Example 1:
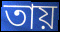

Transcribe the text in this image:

তায়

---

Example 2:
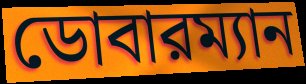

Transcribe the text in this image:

ডোবারম্যান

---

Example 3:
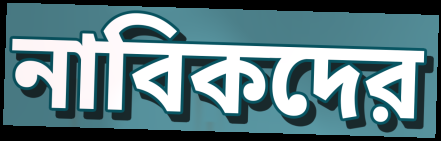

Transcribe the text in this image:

নাবিকদের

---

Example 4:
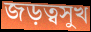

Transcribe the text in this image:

জড়ত্বসুখ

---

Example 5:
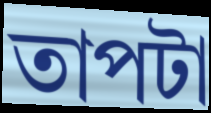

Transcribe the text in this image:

তাপটা